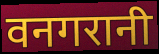
वनगरानी